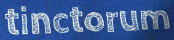
tinctorum